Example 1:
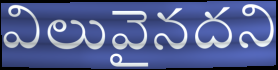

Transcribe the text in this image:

విలువైనదని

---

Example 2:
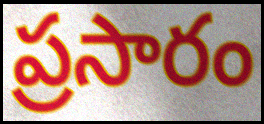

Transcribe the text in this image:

ప్రసారం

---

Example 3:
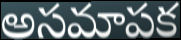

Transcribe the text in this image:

అసమాపక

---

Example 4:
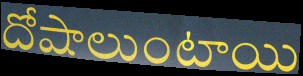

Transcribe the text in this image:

దోషాలుంటాయి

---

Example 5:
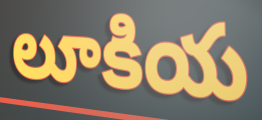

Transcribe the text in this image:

లూకియ